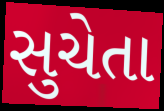
સુચેતા